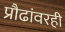
प्रौढांवरही